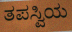
ತಪಸ್ವಿಯ